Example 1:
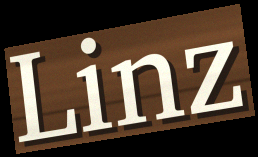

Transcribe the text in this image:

Linz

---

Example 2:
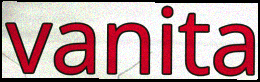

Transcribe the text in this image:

vanita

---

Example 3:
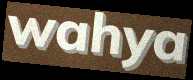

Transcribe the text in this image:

wahya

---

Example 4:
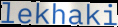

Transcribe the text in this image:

lekhaki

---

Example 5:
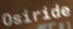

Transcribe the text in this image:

Osiride